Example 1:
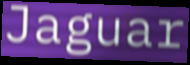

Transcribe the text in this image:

Jaguar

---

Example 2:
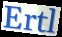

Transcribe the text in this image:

Ertl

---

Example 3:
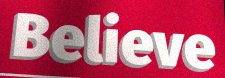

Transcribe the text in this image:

Believe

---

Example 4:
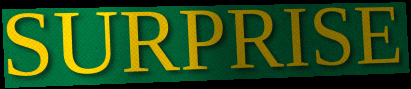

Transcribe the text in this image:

SURPRISE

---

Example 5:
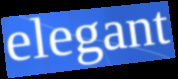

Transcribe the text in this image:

elegant